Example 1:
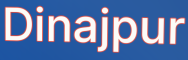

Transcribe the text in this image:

Dinajpur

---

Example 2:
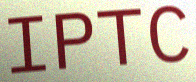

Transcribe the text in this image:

IPTC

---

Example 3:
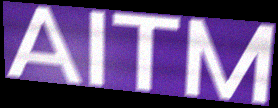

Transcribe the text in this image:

AITM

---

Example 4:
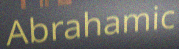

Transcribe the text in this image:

Abrahamic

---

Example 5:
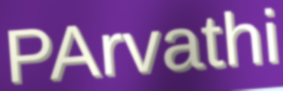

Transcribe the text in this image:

PArvathi